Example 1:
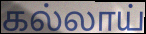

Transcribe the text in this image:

கல்லாய்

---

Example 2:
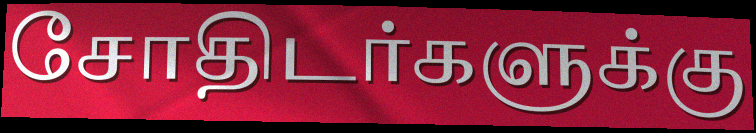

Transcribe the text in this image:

சோதிடர்களுக்கு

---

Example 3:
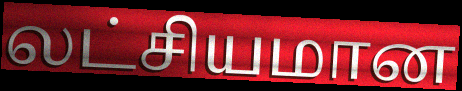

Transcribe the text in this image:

லட்சியமான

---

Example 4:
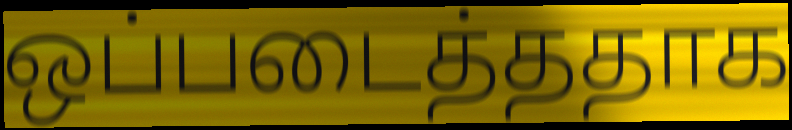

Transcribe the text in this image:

ஒப்படைத்ததாக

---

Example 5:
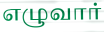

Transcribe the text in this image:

எழுவார்